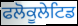
ਫਲੋਕੂਲੇਟਿਡ